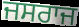
ਜਸਰਾਜ